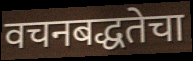
वचनबद्धतेचा